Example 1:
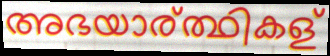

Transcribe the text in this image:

അഭയാര്ത്ഥികള്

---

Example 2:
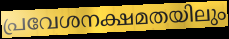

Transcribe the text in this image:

പ്രവേശനക്ഷമതയിലും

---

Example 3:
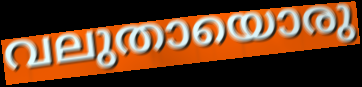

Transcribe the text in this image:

വലുതായൊരു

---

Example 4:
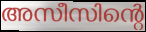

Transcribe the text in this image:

അസീസിന്റെ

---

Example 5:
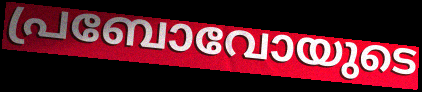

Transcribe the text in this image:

പ്രബോവോയുടെ